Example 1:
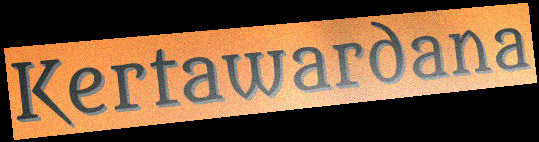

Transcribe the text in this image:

Kertawardana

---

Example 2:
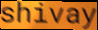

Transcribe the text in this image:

shivay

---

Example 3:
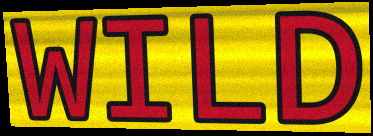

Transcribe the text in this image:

WILD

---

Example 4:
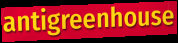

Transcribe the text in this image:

antigreenhouse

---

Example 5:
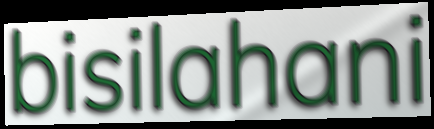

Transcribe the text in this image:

bisilahani